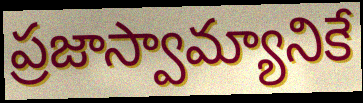
ప్రజాస్వామ్యానికే